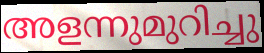
അളന്നുമുറിച്ചു